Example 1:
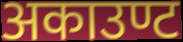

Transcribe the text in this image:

अकाउण्ट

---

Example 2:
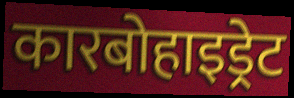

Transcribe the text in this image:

कारबोहाइड्रेट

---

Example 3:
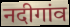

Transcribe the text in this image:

नदीगांव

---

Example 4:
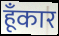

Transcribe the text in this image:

हूँकार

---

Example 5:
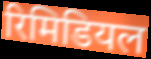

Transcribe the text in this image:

रिमिडियल